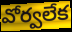
వోర్వలేక